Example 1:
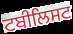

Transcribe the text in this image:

ਟਬੀਲਿਸਟ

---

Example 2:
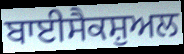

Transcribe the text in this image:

ਬਾਈਸੈਕਸ਼ੁਅਲ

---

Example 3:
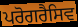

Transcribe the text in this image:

ਪਰੋਗਰੈਸਿਵ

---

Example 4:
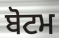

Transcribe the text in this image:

ਬੋਟਮ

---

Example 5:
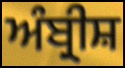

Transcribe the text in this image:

ਅੰਬ੍ਰੀਸ਼